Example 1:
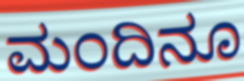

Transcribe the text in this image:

ಮಂದಿನೂ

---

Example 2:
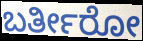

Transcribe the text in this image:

ಬರ್ತೀರೋ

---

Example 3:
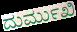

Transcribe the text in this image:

ದುರ್ಮುಖಿ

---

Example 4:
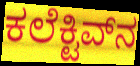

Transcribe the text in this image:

ಕಲೆಕ್ಟಿವ್‌ನ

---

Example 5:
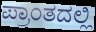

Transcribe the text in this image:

ಪ್ರಾಂತದಲ್ಲಿ